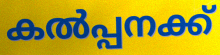
കൽപ്പനക്ക്